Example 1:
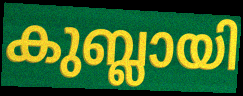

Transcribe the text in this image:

കുബ്ലായി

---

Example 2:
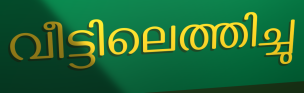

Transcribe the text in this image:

വീട്ടിലെത്തിച്ചു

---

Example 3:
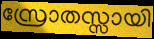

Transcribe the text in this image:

സ്രോതസ്സായി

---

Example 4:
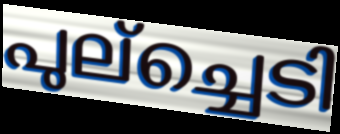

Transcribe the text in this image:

പുല്ച്ചെടി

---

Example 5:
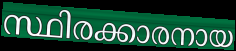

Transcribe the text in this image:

സ്ഥിരക്കാരനായ